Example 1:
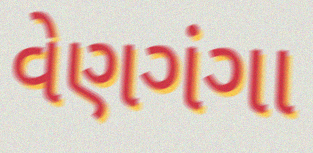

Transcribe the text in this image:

વેણગંગા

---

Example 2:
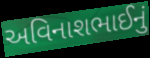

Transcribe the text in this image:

અવિનાશભાઈનું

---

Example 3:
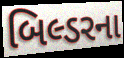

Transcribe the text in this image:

બિલ્ડરના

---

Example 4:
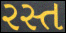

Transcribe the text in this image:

રસ્ત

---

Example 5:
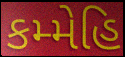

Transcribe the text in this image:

કમ્મેહિ